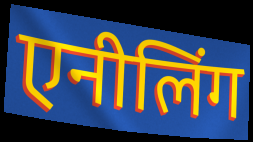
एनीलिंग